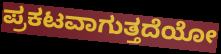
ಪ್ರಕಟವಾಗುತ್ತದೆಯೋ